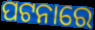
ପଟନାରେ